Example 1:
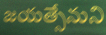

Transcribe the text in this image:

జయత్సేనుని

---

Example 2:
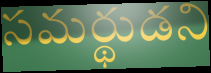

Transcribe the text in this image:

సమర్థుడని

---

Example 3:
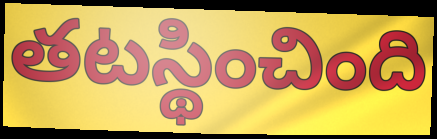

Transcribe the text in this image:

తటస్థించింది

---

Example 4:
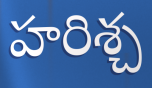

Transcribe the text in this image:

హరిశ్చ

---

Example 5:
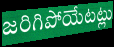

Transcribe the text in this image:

జరిగిపోయేటట్లు